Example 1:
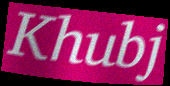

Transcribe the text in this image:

Khubj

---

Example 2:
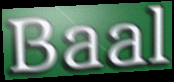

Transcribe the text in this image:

Baal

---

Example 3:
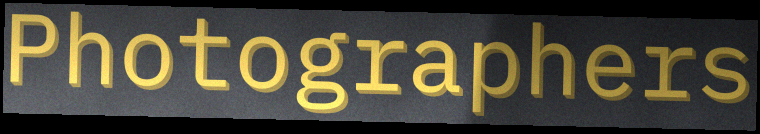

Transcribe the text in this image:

Photographers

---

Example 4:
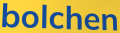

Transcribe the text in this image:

bolchen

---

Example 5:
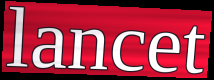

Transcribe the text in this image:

lancet